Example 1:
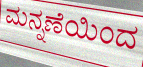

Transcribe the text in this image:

ಮನ್ನಣೆಯಿಂದ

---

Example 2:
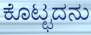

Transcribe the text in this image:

ಕೊಟ್ಟದನು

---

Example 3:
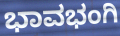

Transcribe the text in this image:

ಭಾವಭಂಗಿ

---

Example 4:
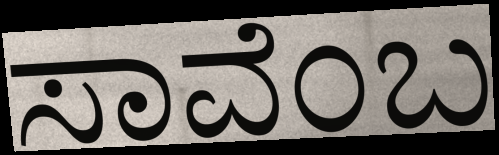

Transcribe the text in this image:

ಸಾವೆಂಬ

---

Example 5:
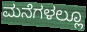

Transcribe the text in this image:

ಮನೆಗಳಲ್ಲೂ